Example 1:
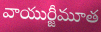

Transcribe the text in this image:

వాయుర్జీమూత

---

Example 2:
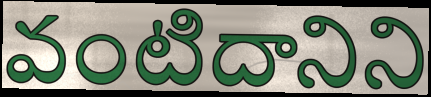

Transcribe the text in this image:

వంటిదానిని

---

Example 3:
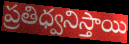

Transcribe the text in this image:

ప్రతిధ్వనిస్తాయి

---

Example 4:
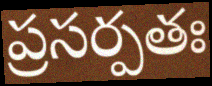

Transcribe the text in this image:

ప్రసర్పతః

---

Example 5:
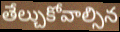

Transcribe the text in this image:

తేల్చుకోవాల్సిన